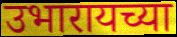
उभारायच्या